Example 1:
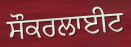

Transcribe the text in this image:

ਸੌਕਰਲਾਈਟ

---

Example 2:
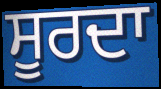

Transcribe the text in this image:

ਸੂਰਦਾ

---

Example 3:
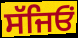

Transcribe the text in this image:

ਸੱਜਿਓਂ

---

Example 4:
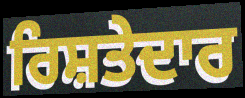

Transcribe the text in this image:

ਰਿਸ਼ਤੇਦਾਰ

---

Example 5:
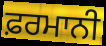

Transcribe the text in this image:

ਫ਼ਰਮਾਨੀ